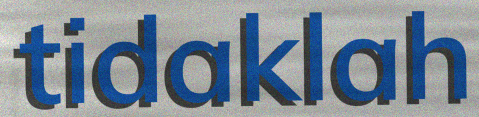
tidaklah